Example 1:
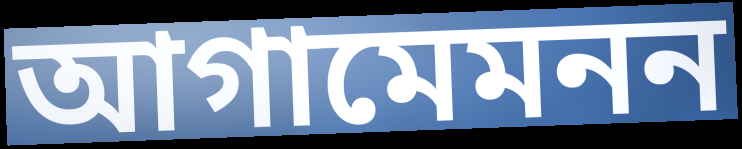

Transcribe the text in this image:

আগামেমনন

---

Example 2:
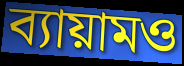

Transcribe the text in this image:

ব্যায়ামও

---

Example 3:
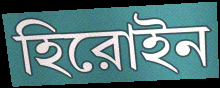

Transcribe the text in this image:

হিরোইন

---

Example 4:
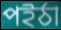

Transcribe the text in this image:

পইঠা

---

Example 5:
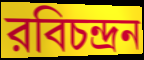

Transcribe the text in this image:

রবিচন্দ্রন